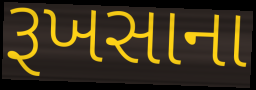
રૂખસાના